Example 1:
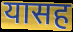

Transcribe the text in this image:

यासह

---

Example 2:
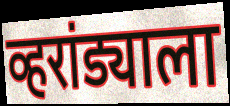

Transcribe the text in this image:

व्हरांड्याला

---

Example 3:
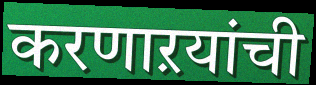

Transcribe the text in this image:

करणाऱयांची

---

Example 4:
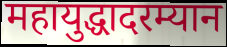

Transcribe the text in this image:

महायुद्धादरम्यान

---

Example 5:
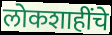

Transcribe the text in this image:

लोकशाहींचे